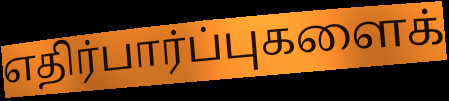
எதிர்பார்ப்புகளைக்